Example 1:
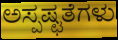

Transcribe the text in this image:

ಅಸ್ಪಷ್ಟತೆಗಳು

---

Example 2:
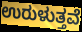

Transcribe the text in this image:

ಉರುಳುತ್ತವೆ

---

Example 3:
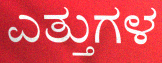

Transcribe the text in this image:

ಎತ್ತುಗಳ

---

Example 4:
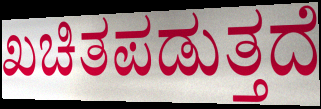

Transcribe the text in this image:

ಖಚಿತಪಡುತ್ತದೆ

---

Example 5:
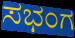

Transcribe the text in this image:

ಸಭಂಗ